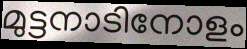
മുട്ടനാടിനോളം